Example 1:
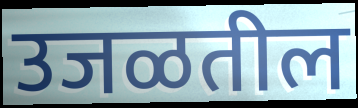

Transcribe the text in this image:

उजळतील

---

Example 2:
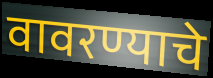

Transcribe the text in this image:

वावरण्याचे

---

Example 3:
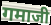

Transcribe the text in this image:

गमाजी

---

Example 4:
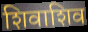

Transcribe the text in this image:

शिवाशिव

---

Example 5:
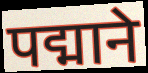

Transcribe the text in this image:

पद्माने